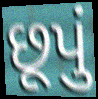
છૂપું